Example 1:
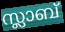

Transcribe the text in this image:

സ്ലാബ്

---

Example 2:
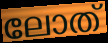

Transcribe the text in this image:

ലോത്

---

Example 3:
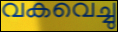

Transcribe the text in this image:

വകവെച്ചു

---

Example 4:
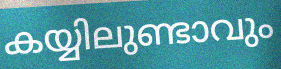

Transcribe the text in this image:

കയ്യിലുണ്ടാവും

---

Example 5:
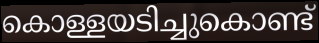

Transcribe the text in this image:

കൊള്ളയടിച്ചുകൊണ്ട്